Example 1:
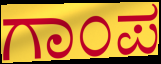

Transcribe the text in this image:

ಗಾಂಪ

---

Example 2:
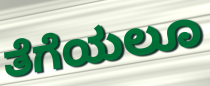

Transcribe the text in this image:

ತೆಗೆಯಲೂ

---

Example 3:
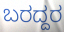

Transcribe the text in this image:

ಬರದ್ದರ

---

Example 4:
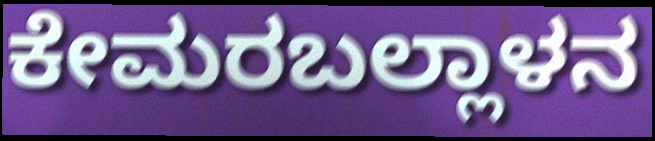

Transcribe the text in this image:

ಕೇಮರಬಲ್ಲಾಳನ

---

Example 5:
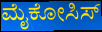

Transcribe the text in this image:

ಮೈಕೋಸಿಸ್